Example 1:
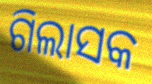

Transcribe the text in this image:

ଗିଲାସକ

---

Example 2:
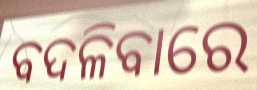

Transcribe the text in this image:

ବଦଳିବାରେ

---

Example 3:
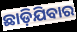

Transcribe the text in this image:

ଛାଡ଼ିଯିବାର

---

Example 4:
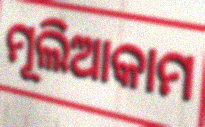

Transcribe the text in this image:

ମୂଲିଆକାମ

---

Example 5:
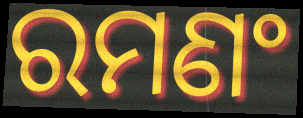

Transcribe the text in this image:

ରମଣଂ